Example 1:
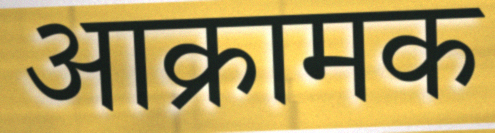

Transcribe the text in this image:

आक्रामक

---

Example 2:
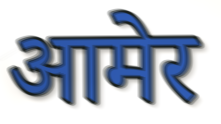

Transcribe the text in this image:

आमेर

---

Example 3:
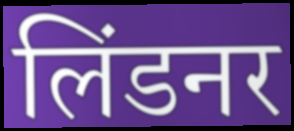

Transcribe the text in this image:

लिंडनर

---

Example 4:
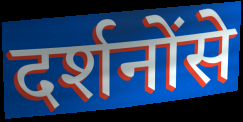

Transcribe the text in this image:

दर्शनोंसे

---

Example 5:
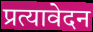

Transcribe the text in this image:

प्रत्यावेदन